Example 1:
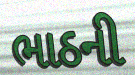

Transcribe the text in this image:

ભાઠની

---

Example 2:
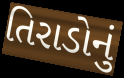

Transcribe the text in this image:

તિરાડોનું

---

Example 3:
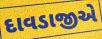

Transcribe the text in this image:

દાવડાજીએ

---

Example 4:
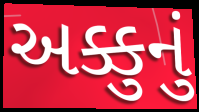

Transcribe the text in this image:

અક્કુનું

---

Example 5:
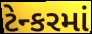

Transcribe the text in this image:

ટેન્કરમાં